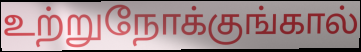
உற்றுநோக்குங்கால்